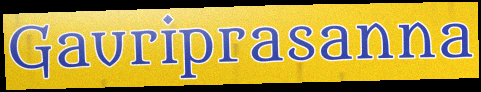
Gauriprasanna